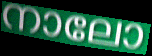
നാലോ